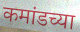
कमांडच्या